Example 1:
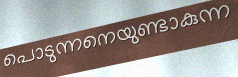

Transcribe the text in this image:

പൊടുന്നനെയുണ്ടാകുന്ന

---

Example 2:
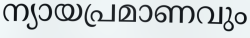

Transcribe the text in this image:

ന്യായപ്രമാണവും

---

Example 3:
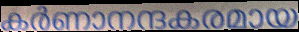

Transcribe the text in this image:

കർണാനന്ദകരമായ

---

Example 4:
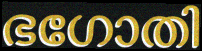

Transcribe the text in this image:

ഭഗോതി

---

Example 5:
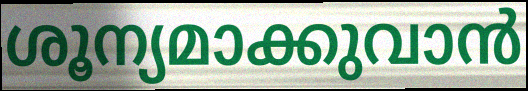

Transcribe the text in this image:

ശൂന്യമാക്കുവാൻ